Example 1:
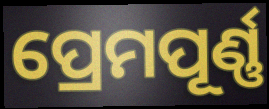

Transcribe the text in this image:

ପ୍ରେମପୂର୍ଣ୍ଣ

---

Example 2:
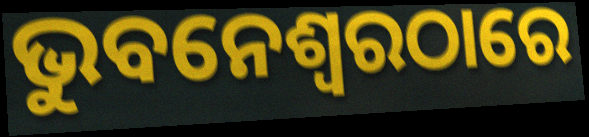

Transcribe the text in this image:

ଭୁବନେଶ୍ଵରଠାରେ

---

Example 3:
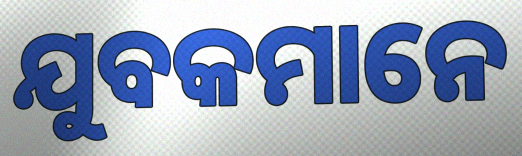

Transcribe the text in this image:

ଯୁବକମାନେ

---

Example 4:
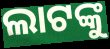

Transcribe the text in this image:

ଲାଟଙ୍କୁ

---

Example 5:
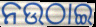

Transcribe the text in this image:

ନଉଠାଇ